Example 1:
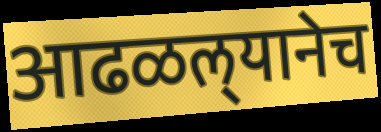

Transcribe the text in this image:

आढळल्यानेच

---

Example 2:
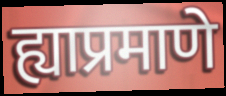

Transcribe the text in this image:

ह्याप्रमाणे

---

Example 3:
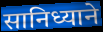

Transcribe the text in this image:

सानिध्याने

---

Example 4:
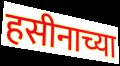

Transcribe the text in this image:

हसीनाच्या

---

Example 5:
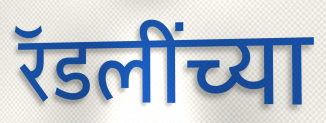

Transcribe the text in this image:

रॅडलींच्या